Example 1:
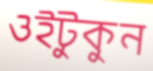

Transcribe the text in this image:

ওইটুকুন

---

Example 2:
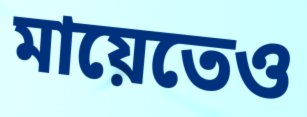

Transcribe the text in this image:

মায়েতেও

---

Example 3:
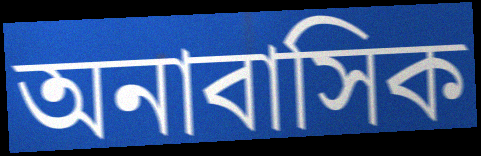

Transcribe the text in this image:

অনাবাসিক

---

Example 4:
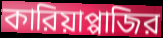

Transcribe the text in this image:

কারিয়াপ্পাজির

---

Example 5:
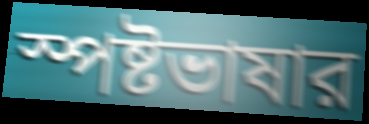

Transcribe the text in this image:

স্পষ্টভাষার